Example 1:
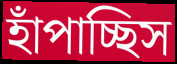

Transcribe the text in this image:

হাঁপাচ্ছিস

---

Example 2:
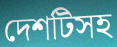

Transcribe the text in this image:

দেশটিসহ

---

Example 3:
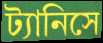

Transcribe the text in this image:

ট্যানিসে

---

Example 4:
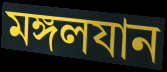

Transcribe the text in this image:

মঙ্গলযান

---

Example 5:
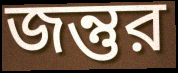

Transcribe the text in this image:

জন্তুর